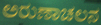
ಅರುಣಾಚಲನ